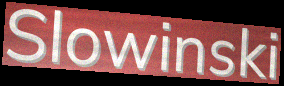
Slowinski